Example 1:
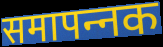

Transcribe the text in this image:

समापन्नक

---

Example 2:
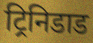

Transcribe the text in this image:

ट्रिनिडाड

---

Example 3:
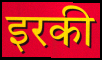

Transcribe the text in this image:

इरकी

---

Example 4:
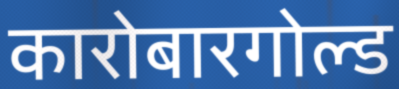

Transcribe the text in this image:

कारोबारगोल्ड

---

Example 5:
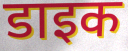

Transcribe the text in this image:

डाइक